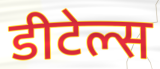
डीटेल्स